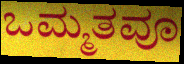
ಒಮ್ಮತವೂ